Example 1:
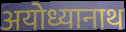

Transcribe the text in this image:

अयोध्यानाथ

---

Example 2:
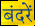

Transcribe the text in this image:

बंदरें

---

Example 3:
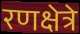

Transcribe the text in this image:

रणक्षेत्रे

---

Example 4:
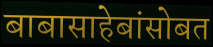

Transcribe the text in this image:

बाबासाहेबांसोबत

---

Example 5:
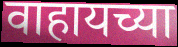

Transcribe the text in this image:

वाहायच्या